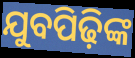
ଯୁବପିଢ଼ିଙ୍କ